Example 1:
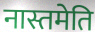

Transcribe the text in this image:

नास्तमेति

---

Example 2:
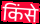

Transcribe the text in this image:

किंसे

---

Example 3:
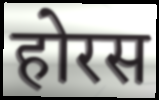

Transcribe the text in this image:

होरस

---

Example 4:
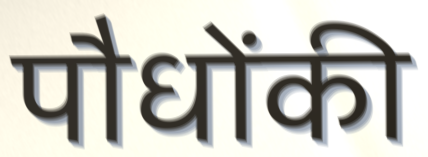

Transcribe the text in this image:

पौधोंकी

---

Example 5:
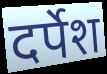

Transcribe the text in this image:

दर्पेश